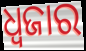
ଧ୍ୱଜାର